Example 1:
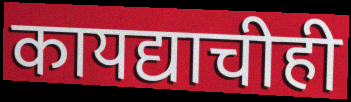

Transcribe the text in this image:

कायद्याचीही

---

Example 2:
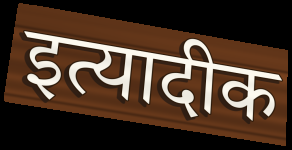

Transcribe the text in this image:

इत्यादीक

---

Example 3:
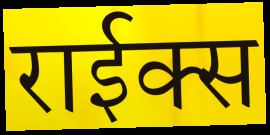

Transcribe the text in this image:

राईक्स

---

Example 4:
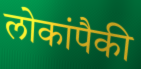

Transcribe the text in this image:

लोकांपैकी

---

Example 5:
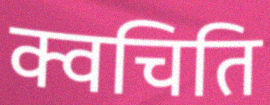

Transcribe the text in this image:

क्वचिति